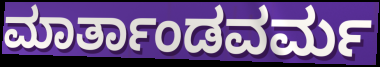
ಮಾರ್ತಾಂಡವರ್ಮ